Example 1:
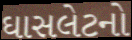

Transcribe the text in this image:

ઘાસલેટનો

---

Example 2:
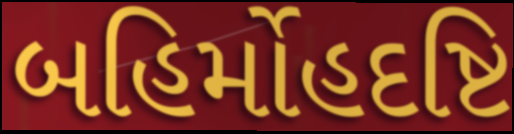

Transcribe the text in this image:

બહિર્મોહદષ્ટિ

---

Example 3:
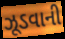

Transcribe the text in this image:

ઝૂડવાની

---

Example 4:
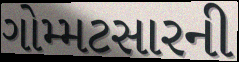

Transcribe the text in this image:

ગોમ્મટસારની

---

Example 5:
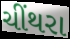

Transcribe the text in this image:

ચીંથરા